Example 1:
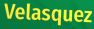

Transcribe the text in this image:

Velasquez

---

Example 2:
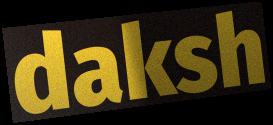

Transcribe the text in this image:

daksh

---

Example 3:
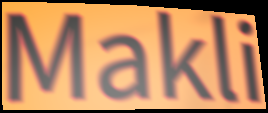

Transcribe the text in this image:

Makli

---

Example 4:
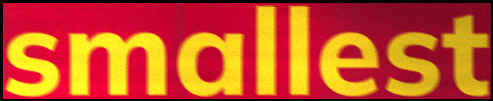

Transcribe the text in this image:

smallest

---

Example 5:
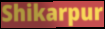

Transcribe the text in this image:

Shikarpur